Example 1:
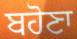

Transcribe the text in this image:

ਬਹੋਣਾ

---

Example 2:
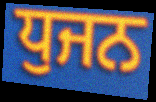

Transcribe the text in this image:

ਧੁਜਨ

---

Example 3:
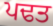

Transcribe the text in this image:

ਪਢਤ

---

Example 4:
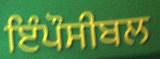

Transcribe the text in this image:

ਇੰਪੌਸੀਬਲ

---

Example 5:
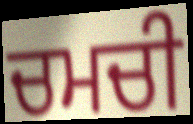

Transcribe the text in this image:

ਚਮਚੀ